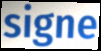
signe